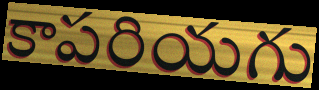
కాపరియగు